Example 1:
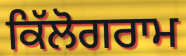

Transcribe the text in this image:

ਕਿੱਲੋਗਰਾਮ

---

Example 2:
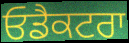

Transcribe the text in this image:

ਓਡੈਕਟਰਾ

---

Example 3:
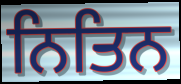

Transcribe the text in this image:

ਨਿਤਿਨ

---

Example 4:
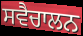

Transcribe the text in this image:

ਸਵੈਚਾਲਨ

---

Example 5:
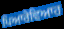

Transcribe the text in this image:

ਪਿਆਰੇਵਿਆਹ